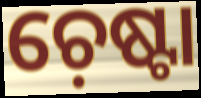
ଚ଼େଷ୍ଟା